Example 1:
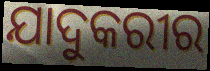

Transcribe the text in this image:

ଯାଦୁକରୀର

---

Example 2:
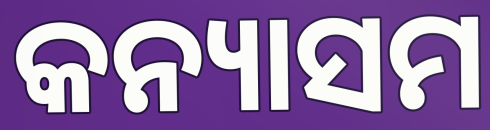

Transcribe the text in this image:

କନ୍ୟାସମ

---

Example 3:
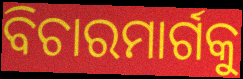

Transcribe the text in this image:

ବିଚାରମାର୍ଗକୁ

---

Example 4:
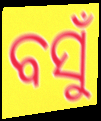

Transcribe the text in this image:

ବସୁଁ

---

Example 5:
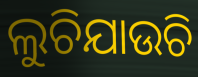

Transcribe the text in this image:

ଲୁଚିଯାଉଚି